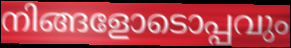
നിങ്ങളോടൊപ്പവും